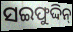
ସଇଫୁଦ୍ଦିନ୍